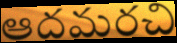
ఆదమరచి